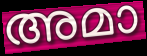
അമാ